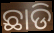
ଛାଡି